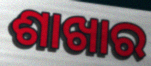
ଶାଖାର